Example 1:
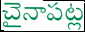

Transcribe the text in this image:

చైనాపట్ల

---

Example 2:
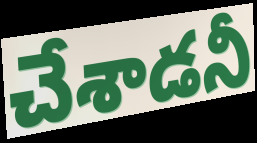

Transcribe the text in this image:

చేశాడనీ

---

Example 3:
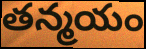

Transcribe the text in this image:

తన్మయం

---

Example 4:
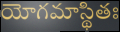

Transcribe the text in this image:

యోగమాస్థితః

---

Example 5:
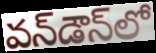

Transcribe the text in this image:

వన్‌డౌన్‌లో